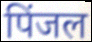
पिंजल